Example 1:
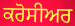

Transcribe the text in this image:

ਕਰੋਸੀਅਰ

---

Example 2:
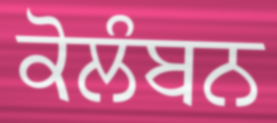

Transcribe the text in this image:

ਕੋਲੰਬਨ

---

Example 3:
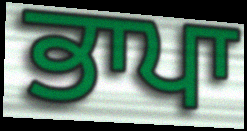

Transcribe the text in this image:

ਭਾਪਾ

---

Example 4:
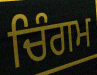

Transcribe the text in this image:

ਚਿੰਗਮ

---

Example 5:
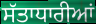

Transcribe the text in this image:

ਸੱਤਾਧਾਰੀਆਂ